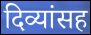
दिव्यांसह